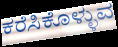
ಕರೆಸಿಕೊಳ್ಳುವ